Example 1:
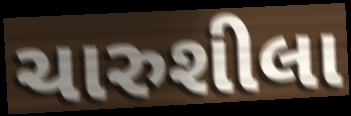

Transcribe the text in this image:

ચારુશીલા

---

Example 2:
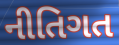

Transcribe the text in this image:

નીતિગત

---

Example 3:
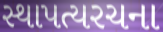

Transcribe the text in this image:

સ્થાપત્યરચના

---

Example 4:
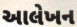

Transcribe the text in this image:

આલેખન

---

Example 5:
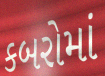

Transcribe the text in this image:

કબરોમાં